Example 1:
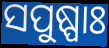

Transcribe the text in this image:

ସପୁଷ୍ପାଃ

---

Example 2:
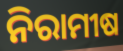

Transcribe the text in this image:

ନିରାମୀଷ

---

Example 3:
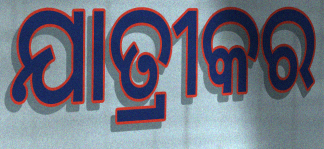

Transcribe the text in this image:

ଯାତ୍ରୀକର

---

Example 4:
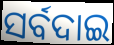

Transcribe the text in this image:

ସର୍ବଦାଇ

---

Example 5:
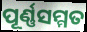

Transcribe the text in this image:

ପୂର୍ଣ୍ଣସମ୍ମତ